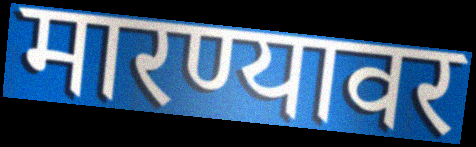
मारण्यावर